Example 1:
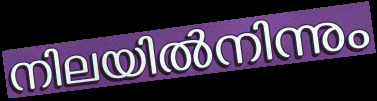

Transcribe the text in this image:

നിലയിൽനിന്നും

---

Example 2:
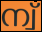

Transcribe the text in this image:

ന്വ്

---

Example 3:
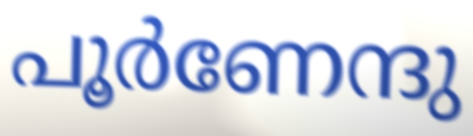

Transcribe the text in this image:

പൂർണേന്ദു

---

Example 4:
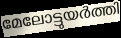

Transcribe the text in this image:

മേലോട്ടുയർത്തി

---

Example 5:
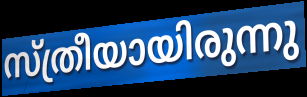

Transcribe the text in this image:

സ്ത്രീയായിരുന്നു